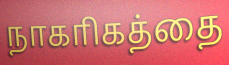
நாகரிகத்தை